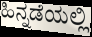
ಹಿನ್ನಡೆಯಲ್ಲಿ